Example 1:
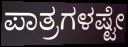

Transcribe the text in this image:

ಪಾತ್ರಗಳಷ್ಟೇ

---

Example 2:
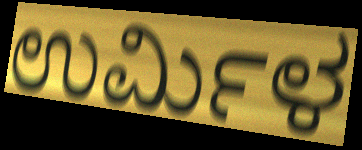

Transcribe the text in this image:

ಉರ್ಮಿಳ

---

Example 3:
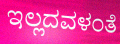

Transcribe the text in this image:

ಇಲ್ಲದವಳಂತೆ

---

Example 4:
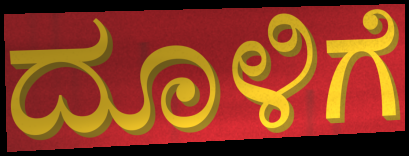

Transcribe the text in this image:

ದೂಳಿಗೆ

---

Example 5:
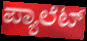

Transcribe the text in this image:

ಪ್ಯಾಲೆಟ್